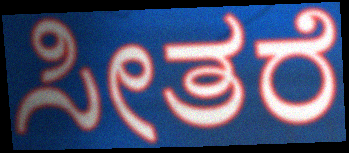
ಸೀತರೆ